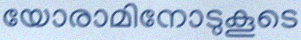
യോരാമിനോടുകൂടെ